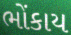
ભોંકાય